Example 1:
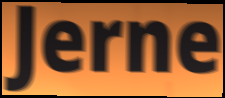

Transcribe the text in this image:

Jerne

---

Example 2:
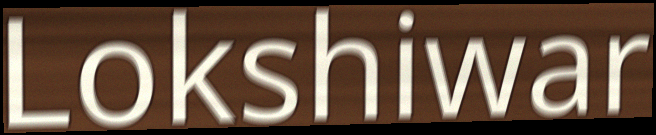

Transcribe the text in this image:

Lokshiwar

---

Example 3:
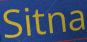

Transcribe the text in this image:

Sitna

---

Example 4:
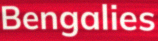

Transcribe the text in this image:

Bengalies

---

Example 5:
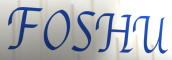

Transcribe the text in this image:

FOSHU